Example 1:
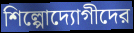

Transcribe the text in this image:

শিল্পোদ্যোগীদের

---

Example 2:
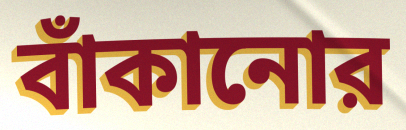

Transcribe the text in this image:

বাঁকানোর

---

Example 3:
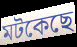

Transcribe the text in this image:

মটকেছে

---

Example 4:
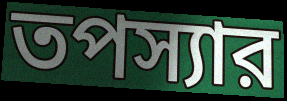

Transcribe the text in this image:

তপস্যার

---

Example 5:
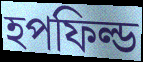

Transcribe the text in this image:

হপফিল্ড